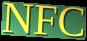
NFC